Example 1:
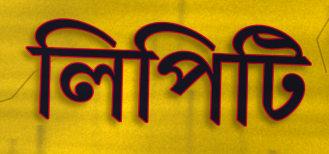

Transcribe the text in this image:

লিপিটি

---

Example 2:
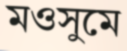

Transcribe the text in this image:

মওসুমে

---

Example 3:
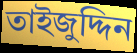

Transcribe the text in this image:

তাইজুদ্দিন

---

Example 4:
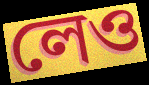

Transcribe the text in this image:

লেও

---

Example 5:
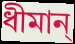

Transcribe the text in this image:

ধীমান্